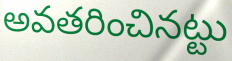
అవతరించినట్టు